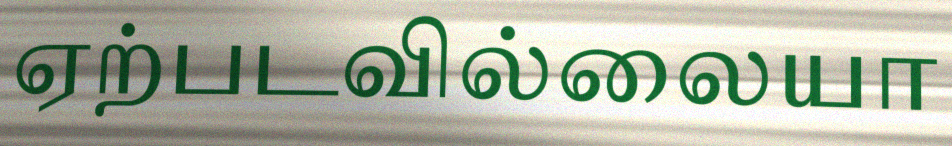
ஏற்படவில்லையா